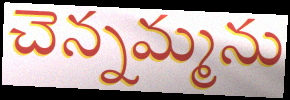
చెన్నమ్మను